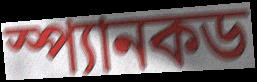
স্প্যানকড